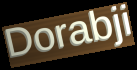
Dorabji